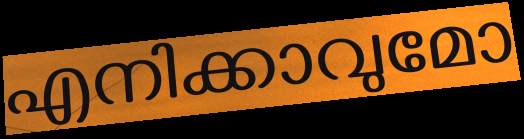
എനിക്കാവുമോ